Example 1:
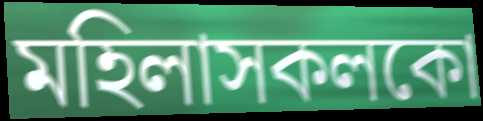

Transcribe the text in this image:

মহিলাসকলকো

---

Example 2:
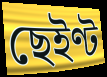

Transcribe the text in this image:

ছেইণ্ট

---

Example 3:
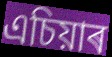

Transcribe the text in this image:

এচিয়াৰ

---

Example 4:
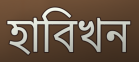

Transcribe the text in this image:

হাবিখন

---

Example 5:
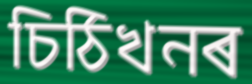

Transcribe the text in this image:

চিঠিখনৰ